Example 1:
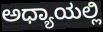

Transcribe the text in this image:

ಅಧ್ಯಾಯಲ್ಲಿ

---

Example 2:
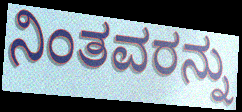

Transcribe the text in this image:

ನಿಂತವರನ್ನು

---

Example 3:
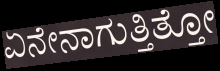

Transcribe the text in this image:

ಏನೇನಾಗುತ್ತಿತ್ತೋ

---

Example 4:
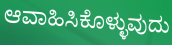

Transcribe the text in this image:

ಆವಾಹಿಸಿಕೊಳ್ಳುವುದು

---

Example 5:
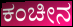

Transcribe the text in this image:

ಕಂಚೀನ